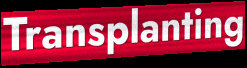
Transplanting